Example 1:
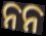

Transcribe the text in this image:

ନନ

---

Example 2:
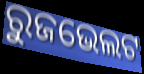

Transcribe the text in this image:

ରୁଜଭେଲଟ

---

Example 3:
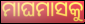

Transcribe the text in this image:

ମାଘମାସକୁ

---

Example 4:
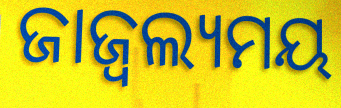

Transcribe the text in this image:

ଜାଜ୍ୱଲ୍ୟମୟ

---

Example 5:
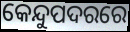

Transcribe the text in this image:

କେନ୍ଦୁପଦରରେ